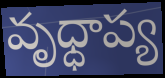
వృధ్ధాప్య